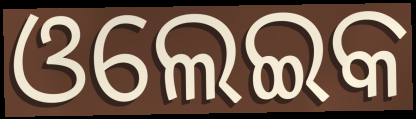
ଓଲେଇକ